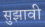
सुझावी